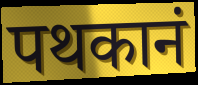
पथकानं